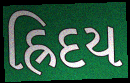
હ્રિદય